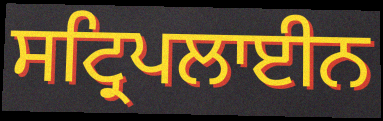
ਸਟ੍ਰਿਪਲਾਈਨ